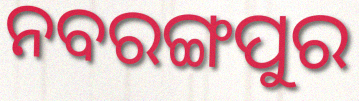
ନବରଙ୍ଗପୁର